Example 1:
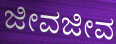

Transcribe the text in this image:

ಜೀವಜೀವ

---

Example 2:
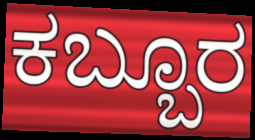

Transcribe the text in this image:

ಕಬ್ಬೂರ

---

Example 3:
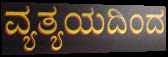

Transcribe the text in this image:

ವ್ಯತ್ಯಯದಿಂದ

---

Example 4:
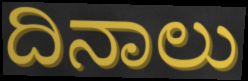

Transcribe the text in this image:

ದಿನಾಲು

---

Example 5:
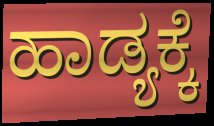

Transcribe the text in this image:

ಹಾಡ್ಯಕ್ಕೆ